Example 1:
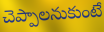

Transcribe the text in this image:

చెప్పాలనుకుంటే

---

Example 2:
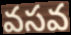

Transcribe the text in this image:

వసవ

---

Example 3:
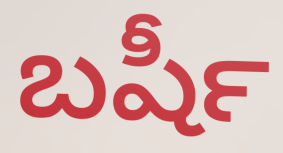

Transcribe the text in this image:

బషీర్‍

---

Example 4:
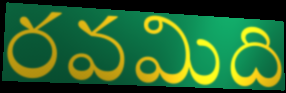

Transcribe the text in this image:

రవమిది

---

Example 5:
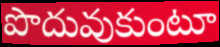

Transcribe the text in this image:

పొదువుకుంటూ